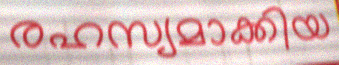
രഹസ്യമാക്കിയ